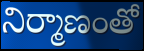
నిర్మాణంతో